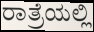
ರಾತ್ರೆಯಲ್ಲಿ